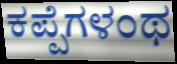
ಕಪ್ಪೆಗಳಂಥ